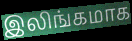
இலிங்கமாக